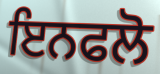
ਇਨਫਲੋ